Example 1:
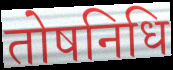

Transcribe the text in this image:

तोषनिधि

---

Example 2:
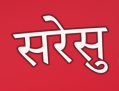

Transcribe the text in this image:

सरेसु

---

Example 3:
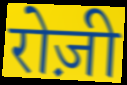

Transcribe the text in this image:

रोज़ी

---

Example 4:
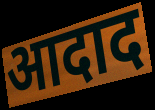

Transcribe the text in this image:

आदाद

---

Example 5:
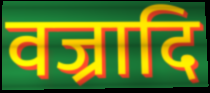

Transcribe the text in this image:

वज्रादि